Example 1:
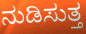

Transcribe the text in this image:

ನುಡಿಸುತ್ತ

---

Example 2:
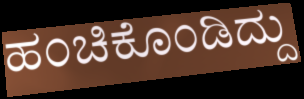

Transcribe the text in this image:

ಹಂಚಿಕೊಂಡಿದ್ದು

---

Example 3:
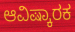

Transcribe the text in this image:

ಆವಿಷ್ಕಾರಕ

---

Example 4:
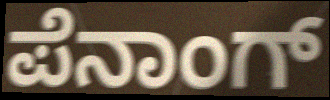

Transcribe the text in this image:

ಪೆನಾಂಗ್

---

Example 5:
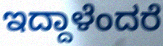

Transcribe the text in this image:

ಇದ್ದಾಳೆಂದರೆ